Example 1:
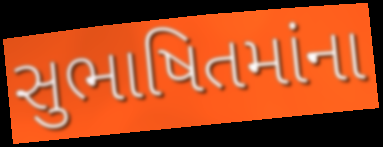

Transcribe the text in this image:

સુભાષિતમાંના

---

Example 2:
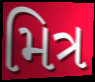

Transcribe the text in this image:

મિત્ર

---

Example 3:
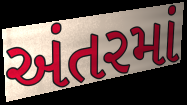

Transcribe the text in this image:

અંતરમાં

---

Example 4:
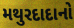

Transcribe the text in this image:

મથુરદાદાનો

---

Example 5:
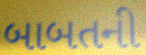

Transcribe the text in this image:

બાબતની